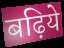
बढ़िये